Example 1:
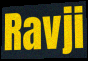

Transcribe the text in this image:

Ravji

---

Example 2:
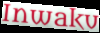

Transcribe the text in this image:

Inwaku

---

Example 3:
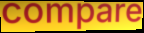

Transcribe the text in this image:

compare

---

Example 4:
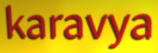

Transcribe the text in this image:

karavya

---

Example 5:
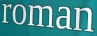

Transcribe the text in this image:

roman